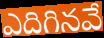
ఎదిగినవే